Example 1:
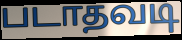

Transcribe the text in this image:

படாதவடி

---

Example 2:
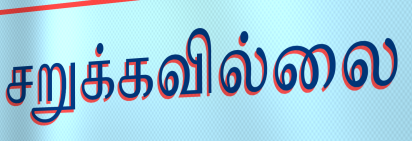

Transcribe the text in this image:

சறுக்கவில்லை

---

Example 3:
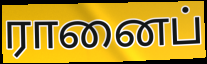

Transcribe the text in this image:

ரானைப்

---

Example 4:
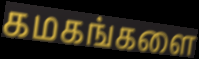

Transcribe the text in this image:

கமகங்களை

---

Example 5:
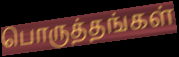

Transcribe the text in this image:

பொருத்தங்கள்